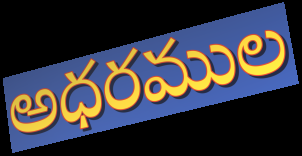
అధరముల